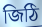
জিঠি